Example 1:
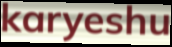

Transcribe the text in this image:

karyeshu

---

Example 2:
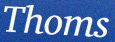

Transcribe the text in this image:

Thoms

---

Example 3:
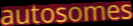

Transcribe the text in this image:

autosomes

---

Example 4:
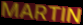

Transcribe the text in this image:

MARTIN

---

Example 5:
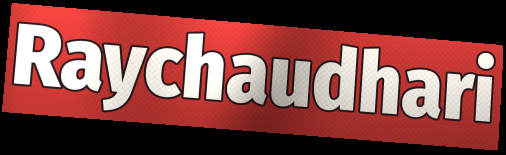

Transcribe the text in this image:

Raychaudhari